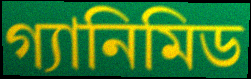
গ্যানিমিড